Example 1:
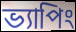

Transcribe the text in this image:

ভ্যাপিং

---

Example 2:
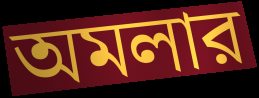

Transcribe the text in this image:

অমলার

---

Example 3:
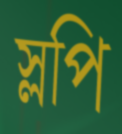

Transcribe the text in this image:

স্লপি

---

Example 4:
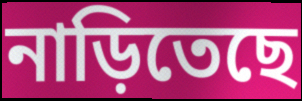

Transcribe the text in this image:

নাড়িতেছে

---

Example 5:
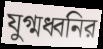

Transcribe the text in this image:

যুগ্মধ্বনির